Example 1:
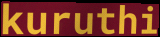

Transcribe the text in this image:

kuruthi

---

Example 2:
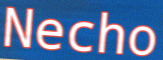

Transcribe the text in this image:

Necho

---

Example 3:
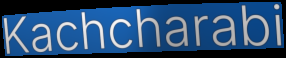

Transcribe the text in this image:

Kachcharabi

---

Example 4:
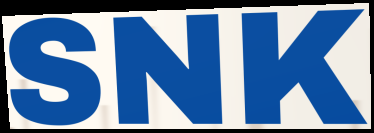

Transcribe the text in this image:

SNK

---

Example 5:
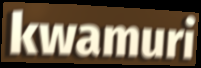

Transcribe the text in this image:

kwamuri